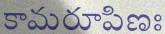
కామరూపిణః